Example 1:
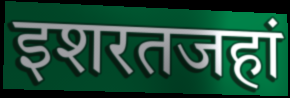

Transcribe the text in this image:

इशरतजहां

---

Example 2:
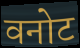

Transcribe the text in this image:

वनोट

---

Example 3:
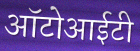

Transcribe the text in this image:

ऑटोआईटी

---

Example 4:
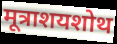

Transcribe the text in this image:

मूत्राशयशोथ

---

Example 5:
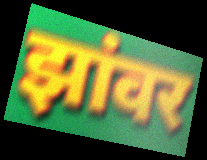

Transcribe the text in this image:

झांवर